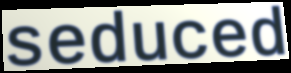
seduced